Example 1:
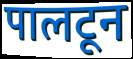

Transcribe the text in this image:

पालटून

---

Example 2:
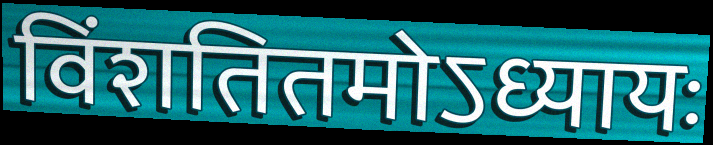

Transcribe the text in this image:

विंशतितमोऽध्यायः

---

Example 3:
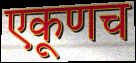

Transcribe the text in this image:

एकूणच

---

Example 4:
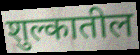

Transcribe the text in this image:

शुल्कातील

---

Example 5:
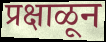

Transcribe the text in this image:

प्रक्षाळून